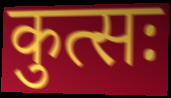
कुत्सः